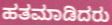
ಹತಮಾಡಿದರು